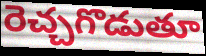
రెచ్చగొడుతూ